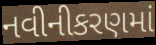
નવીનીકરણમાં